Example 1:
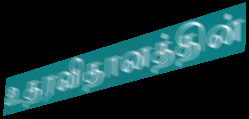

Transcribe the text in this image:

உதரவிதானத்தின்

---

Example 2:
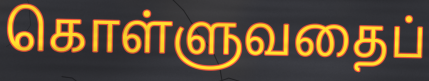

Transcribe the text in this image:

கொள்ளுவதைப்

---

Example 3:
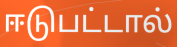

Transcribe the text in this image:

ஈடுபட்டால்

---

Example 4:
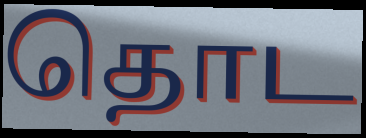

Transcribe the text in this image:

தொட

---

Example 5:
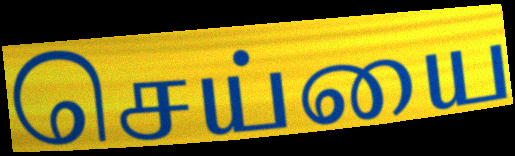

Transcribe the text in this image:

செய்யை